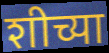
शीच्या